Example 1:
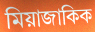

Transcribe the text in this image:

মিয়াজাকিক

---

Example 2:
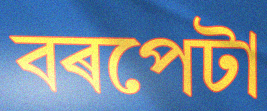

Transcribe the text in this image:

বৰপেটা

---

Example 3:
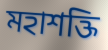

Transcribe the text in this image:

মহাশক্তি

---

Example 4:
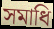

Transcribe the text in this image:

সমাধি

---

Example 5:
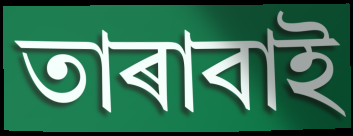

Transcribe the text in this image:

তাৰাবাই